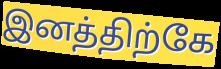
இனத்திற்கே